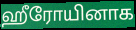
ஹீரோயினாக